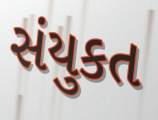
સંયુકત